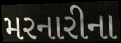
મરનારીના